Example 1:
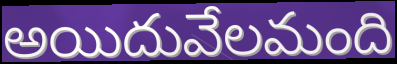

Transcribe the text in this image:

అయిదువేలమంది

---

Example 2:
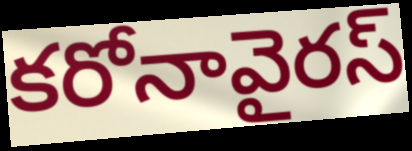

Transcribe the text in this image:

కరోనావైరస్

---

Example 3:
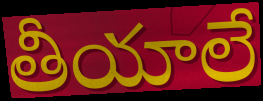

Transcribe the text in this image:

తీయాలే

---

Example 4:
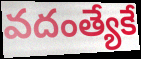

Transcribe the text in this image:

వదంత్యేకే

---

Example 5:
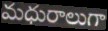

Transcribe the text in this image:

మధురాలుగా